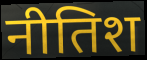
नीतिश